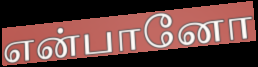
என்பானோ